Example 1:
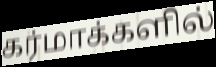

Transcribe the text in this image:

கர்மாக்களில்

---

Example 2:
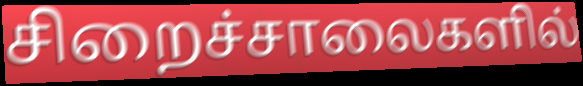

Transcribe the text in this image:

சிறைச்சாலைகளில்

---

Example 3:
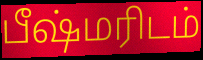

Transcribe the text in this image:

பீஷ்மரிடம்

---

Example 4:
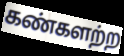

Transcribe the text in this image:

கண்களற்ற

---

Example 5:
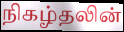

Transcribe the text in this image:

நிகழ்தலின்